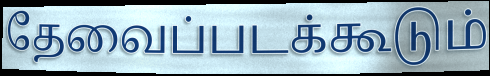
தேவைப்படக்கூடும்